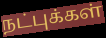
நட்புக்கள்